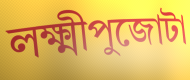
লক্ষ্মীপুজোটা